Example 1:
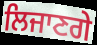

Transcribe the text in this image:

ਲਿਜਾਣਗੇ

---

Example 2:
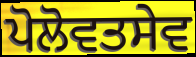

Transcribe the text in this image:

ਪੋਲੋਵਤਸੇਵ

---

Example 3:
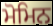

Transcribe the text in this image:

ਮੋਮਿਨ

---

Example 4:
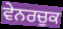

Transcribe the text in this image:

ਵੇਨਰਚੁਕ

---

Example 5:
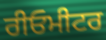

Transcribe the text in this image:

ਰੀਓਮੀਟਰ